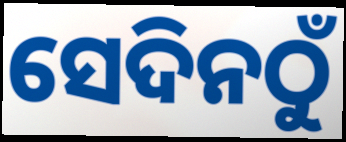
ସେଦିନଠୁଁ